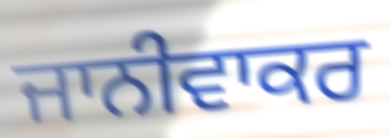
ਜਾਨੀਵਾਕਰ